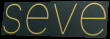
seve